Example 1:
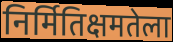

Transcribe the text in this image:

निर्मितिक्षमतेला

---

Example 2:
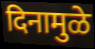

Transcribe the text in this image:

दिनामुळे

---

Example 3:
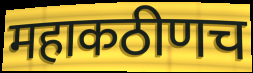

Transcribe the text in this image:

महाकठीणच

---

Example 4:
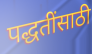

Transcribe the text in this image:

पद्धतींसाठी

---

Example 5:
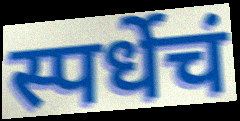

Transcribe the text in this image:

स्पर्धेचं